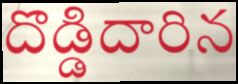
దొడ్డిదారిన